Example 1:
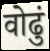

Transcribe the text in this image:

वोढुं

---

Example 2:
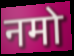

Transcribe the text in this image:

नमो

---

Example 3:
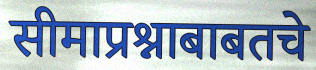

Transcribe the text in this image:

सीमाप्रश्नाबाबतचे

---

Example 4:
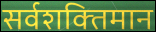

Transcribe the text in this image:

सर्वशक्‍तिमान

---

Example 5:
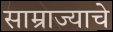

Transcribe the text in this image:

साम्राज्याचे